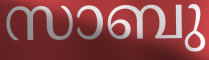
സാബു